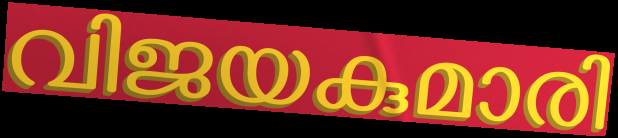
വിജയകുമാരി